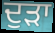
ਦੁੜਾ